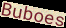
Buboes